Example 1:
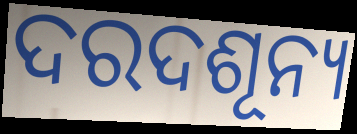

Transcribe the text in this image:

ଦରଦଶୂନ୍ୟ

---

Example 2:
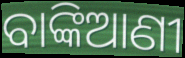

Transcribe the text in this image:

ବାଙ୍କିଆଣୀ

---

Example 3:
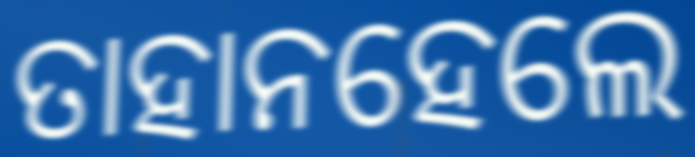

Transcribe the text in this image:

ତାହାନହେଲେ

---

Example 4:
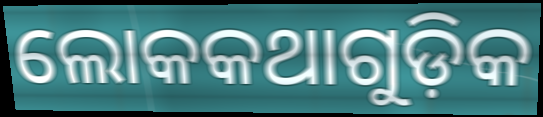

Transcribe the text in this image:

ଲୋକକଥାଗୁଡ଼ିକ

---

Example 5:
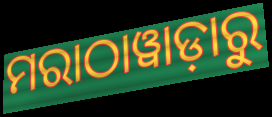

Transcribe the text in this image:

ମରାଠାୱାଡ଼ାରୁ